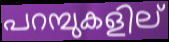
പറമ്പുകളില്